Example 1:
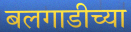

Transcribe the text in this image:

बलगाडीच्या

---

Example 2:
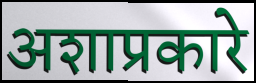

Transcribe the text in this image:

अशाप्रकारे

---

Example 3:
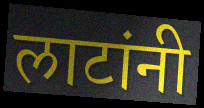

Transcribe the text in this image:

लाटांनी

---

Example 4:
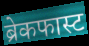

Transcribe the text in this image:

ब्रेकफास्ट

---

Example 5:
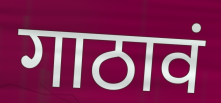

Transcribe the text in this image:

गाठावं